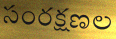
సంరక్షణల